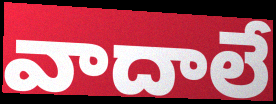
వాదాలే